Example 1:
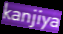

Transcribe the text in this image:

kanjiya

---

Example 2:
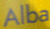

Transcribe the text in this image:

Alba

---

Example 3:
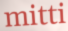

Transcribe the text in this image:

mitti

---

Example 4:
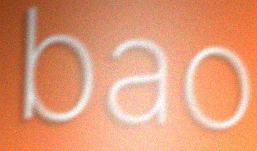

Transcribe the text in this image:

bao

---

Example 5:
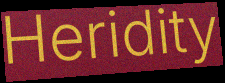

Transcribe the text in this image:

Heridity